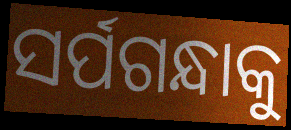
ସର୍ପଗନ୍ଧାକୁ